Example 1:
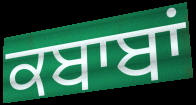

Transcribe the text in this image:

ਕਬਾਬਾਂ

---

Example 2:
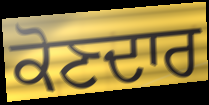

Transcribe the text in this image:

ਕੋਣਦਾਰ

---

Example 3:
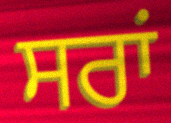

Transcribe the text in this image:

ਸਰਾਂ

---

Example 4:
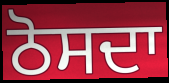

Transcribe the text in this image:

ਠੋਸਦਾ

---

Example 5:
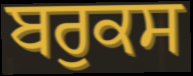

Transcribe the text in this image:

ਬਰੁਕਸ